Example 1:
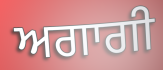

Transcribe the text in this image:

ਅਗਾਗੀ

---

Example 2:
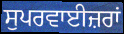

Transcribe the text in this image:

ਸੁਪਰਵਾਈਜ਼ਰਾਂ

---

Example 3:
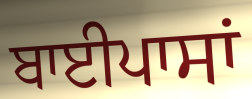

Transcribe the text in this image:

ਬਾਈਪਾਸਾਂ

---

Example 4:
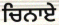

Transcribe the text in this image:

ਚਿਨਾਏ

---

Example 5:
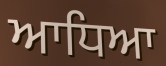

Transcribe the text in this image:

ਆਧਿਆ